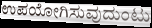
ಉಪಯೋಗಿಸುವುದುಂಟು